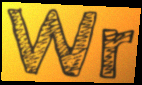
Wr